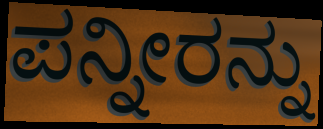
ಪನ್ನೀರನ್ನು